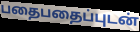
பதைபதைப்புடன்